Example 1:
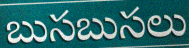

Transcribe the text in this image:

బుసబుసలు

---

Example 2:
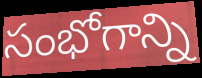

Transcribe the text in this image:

సంభోగాన్ని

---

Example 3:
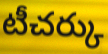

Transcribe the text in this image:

టీచర్కు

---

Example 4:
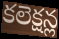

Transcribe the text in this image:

కలెక్షన్ల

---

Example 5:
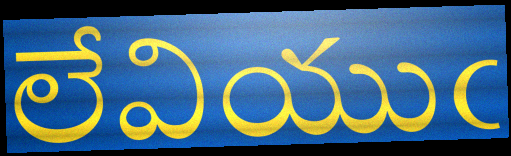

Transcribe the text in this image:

లేవియుఁ